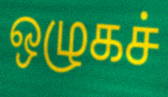
ஒழுகச்